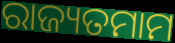
ରାଜ୍ୟତମାମ